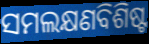
ସମଲକ୍ଷଣବିଶିଷ୍ଟ